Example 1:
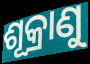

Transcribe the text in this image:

ଶୂକ୍ରାଣୁ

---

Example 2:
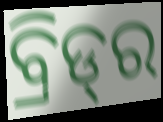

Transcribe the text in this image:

ବ୍ରିଡ୍‌ର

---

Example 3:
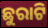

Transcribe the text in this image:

ଛୁରାଟି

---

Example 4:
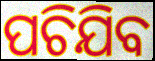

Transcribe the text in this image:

ପଚିଯିବ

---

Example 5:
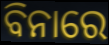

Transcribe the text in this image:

ବିନାରେ